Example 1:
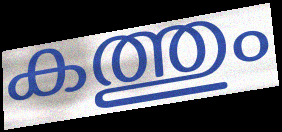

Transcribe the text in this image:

കത്തും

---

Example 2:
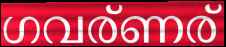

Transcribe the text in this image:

ഗവര്ണര്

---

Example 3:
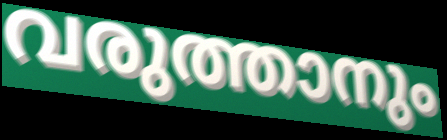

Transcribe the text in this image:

വരുത്താനും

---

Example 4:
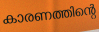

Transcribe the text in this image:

കാരണത്തിന്റെ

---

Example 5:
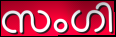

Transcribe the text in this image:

സംഗി